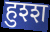
हुश्श